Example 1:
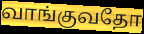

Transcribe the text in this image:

வாங்குவதோ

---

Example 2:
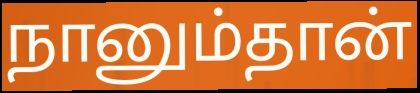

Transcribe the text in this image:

நானும்தான்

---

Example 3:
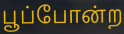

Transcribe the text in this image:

பூப்போன்ற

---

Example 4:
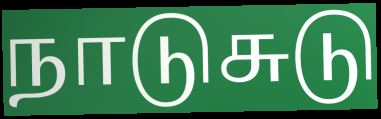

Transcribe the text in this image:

நாடுசுடு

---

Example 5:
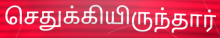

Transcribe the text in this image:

செதுக்கியிருந்தார்